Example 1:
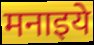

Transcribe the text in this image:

मनाइये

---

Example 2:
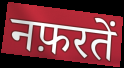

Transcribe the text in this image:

नफ़रतें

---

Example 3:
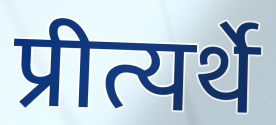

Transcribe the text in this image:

प्रीत्यर्थे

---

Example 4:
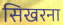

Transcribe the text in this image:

सिखरना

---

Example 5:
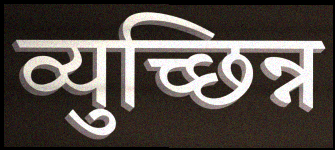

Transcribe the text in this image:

व्युच्छिन्न